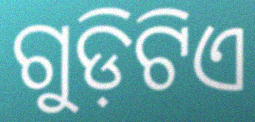
ଗୁଡ଼ିଟିଏ